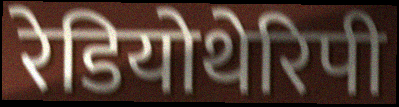
रेडियोथेरिपी